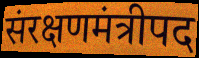
संरक्षणमंत्रीपद